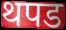
थपड